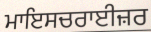
ਮਾਇਸਚਰਾਈਜ਼ਰ